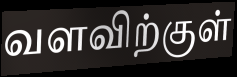
வளவிற்குள்